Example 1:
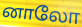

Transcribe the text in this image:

னாலோ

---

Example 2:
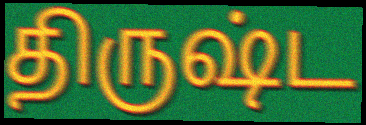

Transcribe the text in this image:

திருஷ்ட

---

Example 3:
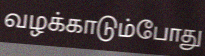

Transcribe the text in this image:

வழக்காடும்போது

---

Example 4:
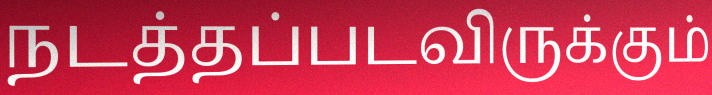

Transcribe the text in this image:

நடத்தப்படவிருக்கும்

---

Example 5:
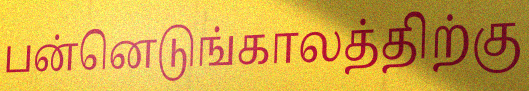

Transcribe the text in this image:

பன்னெடுங்காலத்திற்கு